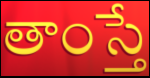
తాంస్తే